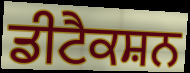
ਡੀਟੈਕਸ਼ਨ